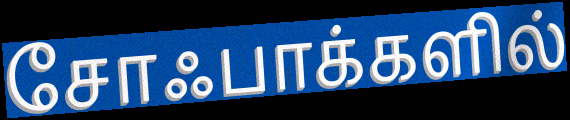
சோஃபாக்களில்